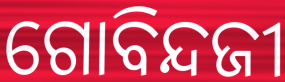
ଗୋବିନ୍ଦଜୀ